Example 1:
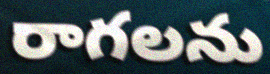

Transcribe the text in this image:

రాగలను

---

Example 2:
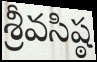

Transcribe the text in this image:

శ్రీవసిష్ఠ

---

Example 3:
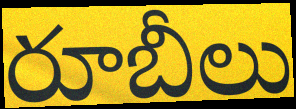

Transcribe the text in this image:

రూబీలు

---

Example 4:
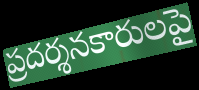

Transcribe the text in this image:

ప్రదర్శనకారులపై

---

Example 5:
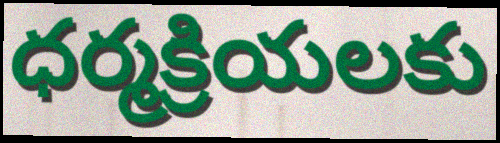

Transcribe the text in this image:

ధర్మక్రియలకు